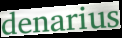
denarius